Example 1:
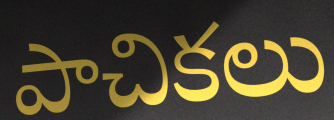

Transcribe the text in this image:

పాచికలు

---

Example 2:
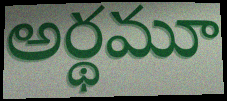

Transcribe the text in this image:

అర్థమూ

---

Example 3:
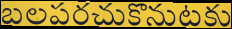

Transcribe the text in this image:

బలపరచుకొనుటకు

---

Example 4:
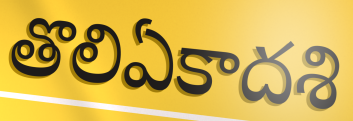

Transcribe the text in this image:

తొలిఏకాదశి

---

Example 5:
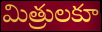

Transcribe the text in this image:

మిత్రులకూ